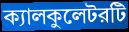
ক্যালকুলেটরটি